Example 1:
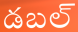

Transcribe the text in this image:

డబల్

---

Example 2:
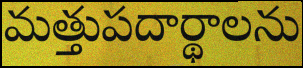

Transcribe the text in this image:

మత్తుపదార్థాలను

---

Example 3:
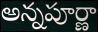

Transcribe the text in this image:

అన్నపూర్ణా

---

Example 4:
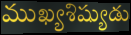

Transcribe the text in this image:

ముఖ్యశిష్యుడు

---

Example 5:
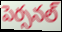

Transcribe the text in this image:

పెర్సనల్